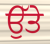
ਉੱਤੇ